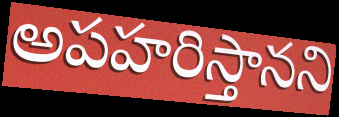
అపహరిస్తానని